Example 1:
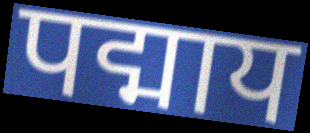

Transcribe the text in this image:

पद्माय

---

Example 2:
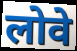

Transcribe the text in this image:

लोवे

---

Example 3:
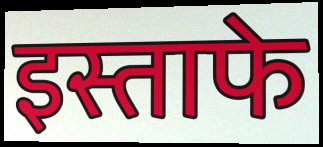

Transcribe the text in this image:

इस्ताफे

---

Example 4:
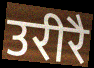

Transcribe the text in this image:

उरीरै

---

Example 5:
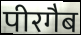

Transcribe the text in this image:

पीरगैब